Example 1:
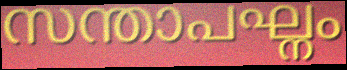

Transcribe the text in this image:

സന്താപഘ്നം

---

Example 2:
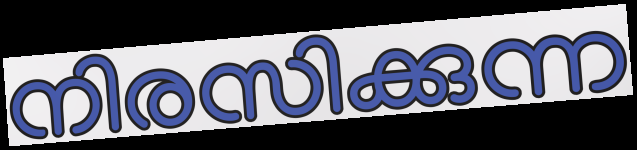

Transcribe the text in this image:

നിരസിക്കുന്ന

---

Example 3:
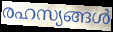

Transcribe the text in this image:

രഹസ്യങ്ങൾ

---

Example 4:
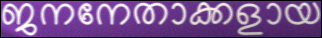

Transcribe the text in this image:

ജനനേതാക്കളായ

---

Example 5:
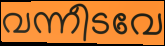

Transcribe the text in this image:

വന്നീടവേ